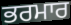
ਭਰਮਾਰ